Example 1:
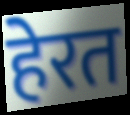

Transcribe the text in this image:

हेरत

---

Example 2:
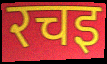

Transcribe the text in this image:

रचइ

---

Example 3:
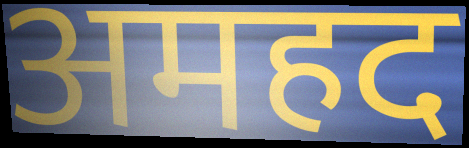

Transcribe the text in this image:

अमहद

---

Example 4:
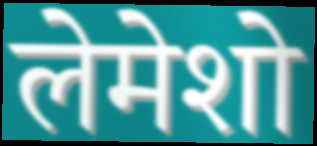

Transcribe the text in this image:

लेमेशो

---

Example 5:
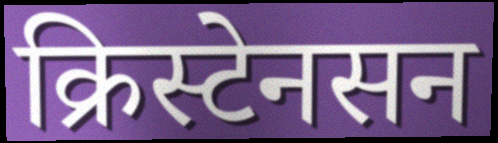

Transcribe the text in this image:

क्रिस्टेनसन